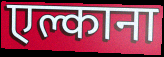
एल्काना